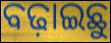
ବଢ଼ାଇଛୁ